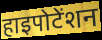
हाइपोटेंशन